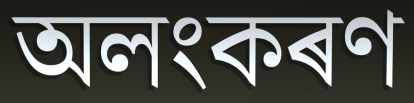
অলংকৰণ